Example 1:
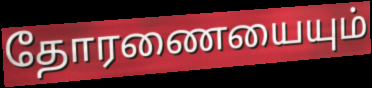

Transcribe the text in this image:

தோரணையையும்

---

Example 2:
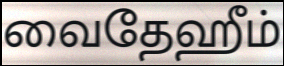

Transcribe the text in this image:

வைதேஹீம்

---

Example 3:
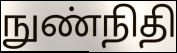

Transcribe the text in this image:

நுண்நிதி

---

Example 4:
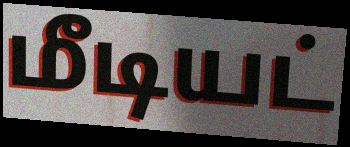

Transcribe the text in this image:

மீடியட்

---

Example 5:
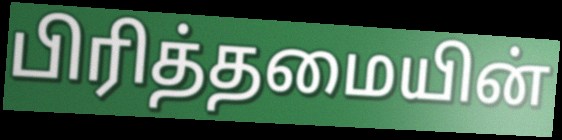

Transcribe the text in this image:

பிரித்தமையின்